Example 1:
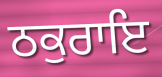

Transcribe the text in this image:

ਠਕੁਰਾਇ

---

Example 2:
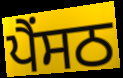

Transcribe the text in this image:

ਪੈਂਸਠ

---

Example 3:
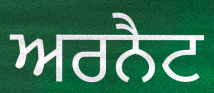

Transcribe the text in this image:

ਅਰਨੈਟ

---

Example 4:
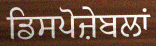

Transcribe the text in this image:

ਡਿਸਪੋਜ਼ੇਬਲਾਂ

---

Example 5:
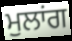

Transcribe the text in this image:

ਮੁਲਾਂਗ